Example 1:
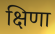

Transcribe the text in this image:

क्षिणा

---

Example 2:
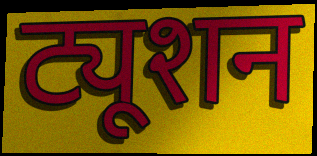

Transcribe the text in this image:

ट्यूशन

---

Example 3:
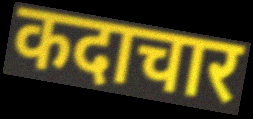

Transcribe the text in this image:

कदाचार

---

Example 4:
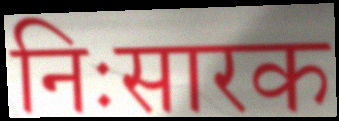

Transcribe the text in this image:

निःसारक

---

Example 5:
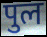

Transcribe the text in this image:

पुल